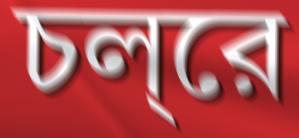
চল্‌রে